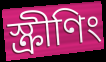
স্ক্ৰীণিং